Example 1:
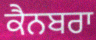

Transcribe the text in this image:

ਕੈਨਬਰਾ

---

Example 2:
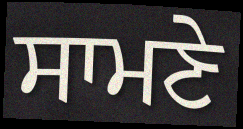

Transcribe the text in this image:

ਸਾਮਣੇ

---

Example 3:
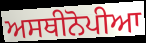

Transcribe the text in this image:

ਅਸਥੀਨੋਪੀਆ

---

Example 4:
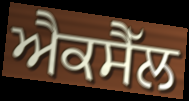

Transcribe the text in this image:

ਐਕਸੈੱਲ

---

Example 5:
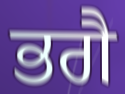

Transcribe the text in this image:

ਭਗੈ